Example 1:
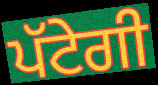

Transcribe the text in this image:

ਪੱਟੇਗੀ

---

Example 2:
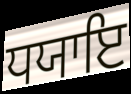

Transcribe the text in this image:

ਧਯਾਇ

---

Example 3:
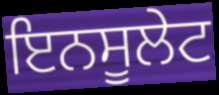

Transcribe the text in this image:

ਇਨਸੂਲੇਟ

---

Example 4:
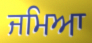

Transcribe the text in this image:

ਜਮਿਆ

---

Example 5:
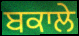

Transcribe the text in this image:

ਬਕਾਲੇ